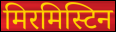
मिरमिस्टिन